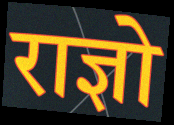
राज्ञो